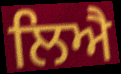
ਲਿਐ